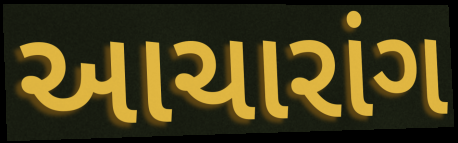
આચારાંગ